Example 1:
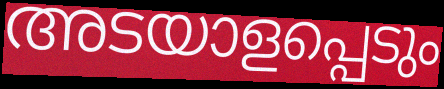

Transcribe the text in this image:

അടയാളപ്പെടും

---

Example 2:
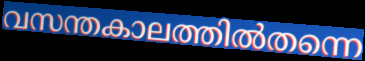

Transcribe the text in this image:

വസന്തകാലത്തിൽതന്നെ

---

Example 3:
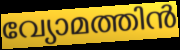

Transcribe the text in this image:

വ്യോമത്തിൻ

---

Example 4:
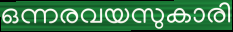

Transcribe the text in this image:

ഒന്നരവയസുകാരി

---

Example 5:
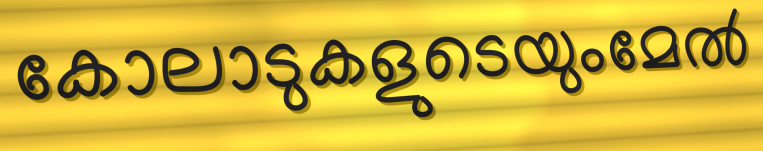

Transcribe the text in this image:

കോലാടുകളുടെയുംമേൽ